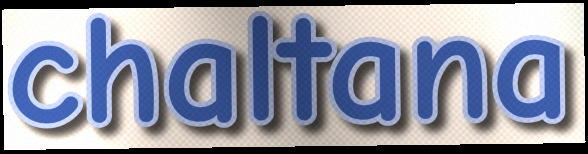
chaltana